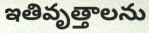
ఇతివృత్తాలను